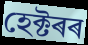
হেক্টৰৰ